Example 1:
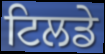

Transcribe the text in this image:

ਟਿਲਡੇ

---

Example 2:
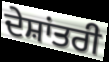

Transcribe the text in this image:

ਦੇਸ਼ਾਂਤਰੀ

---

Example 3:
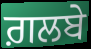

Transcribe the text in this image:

ਗ਼ਲਬੇ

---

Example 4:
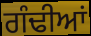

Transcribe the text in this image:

ਗੰਢੀਆਂ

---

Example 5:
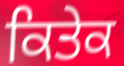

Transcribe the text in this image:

ਕਿਤੇਕ